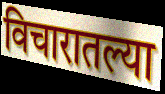
विचारातल्या